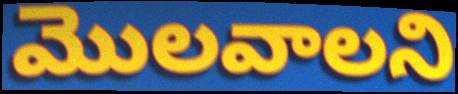
మొలవాలని